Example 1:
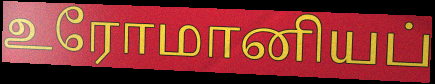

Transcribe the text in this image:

உரோமானியப்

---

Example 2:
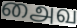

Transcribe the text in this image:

அைவ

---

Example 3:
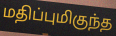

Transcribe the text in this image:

மதிப்புமிகுந்த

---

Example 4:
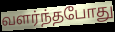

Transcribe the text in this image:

வளர்ந்தபோது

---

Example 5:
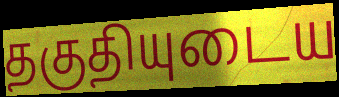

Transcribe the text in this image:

தகுதியுடைய